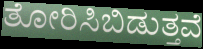
ತೋರಿಸಿಬಿಡುತ್ತವೆ